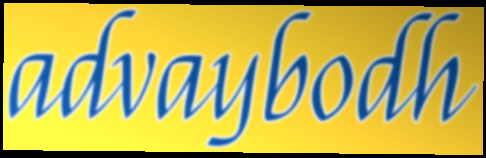
advaybodh